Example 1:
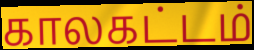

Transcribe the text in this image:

காலகட்டம்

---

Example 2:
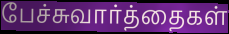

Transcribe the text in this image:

பேச்சுவார்த்தைகள்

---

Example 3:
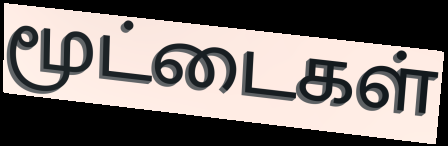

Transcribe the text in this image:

மூட்டைகள்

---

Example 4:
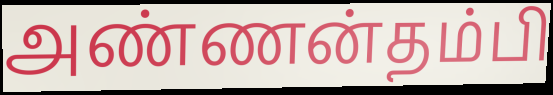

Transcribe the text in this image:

அண்ணன்தம்பி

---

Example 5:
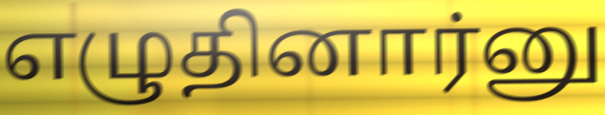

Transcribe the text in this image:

எழுதினார்னு